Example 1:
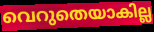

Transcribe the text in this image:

വെറുതെയാകില്ല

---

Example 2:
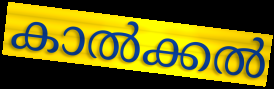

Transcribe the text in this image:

കാൽക്കൽ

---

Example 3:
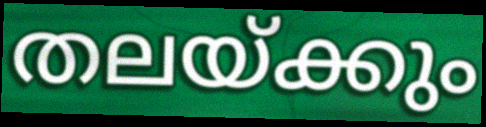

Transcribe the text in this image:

തലയ്ക്കും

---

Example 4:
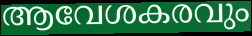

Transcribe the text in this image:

ആവേശകരവും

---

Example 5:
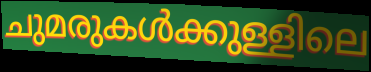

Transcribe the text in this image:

ചുമരുകൾക്കുള്ളിലെ